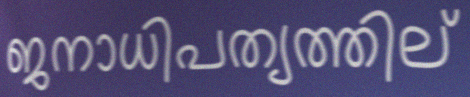
ജനാധിപത്യത്തില്